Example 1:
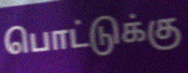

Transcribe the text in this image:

பொட்டுக்கு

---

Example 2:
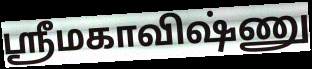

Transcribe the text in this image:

ஸ்ரீமகாவிஷ்ணு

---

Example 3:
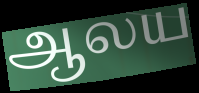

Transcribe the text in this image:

ஆலய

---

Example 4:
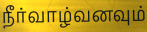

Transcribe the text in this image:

நீர்வாழ்வனவும்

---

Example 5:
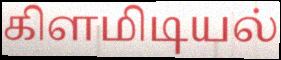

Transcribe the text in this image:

கிளமிடியல்